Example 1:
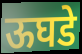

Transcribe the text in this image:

ऊघडे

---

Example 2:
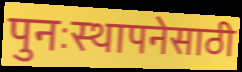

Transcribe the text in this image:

पुनःस्थापनेसाठी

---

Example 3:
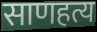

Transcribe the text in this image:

साणहत्य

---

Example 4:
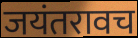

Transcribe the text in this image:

जयंतरावच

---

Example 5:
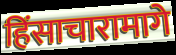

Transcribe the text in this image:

हिंसाचारामागे